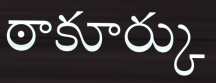
ఠాకూర్కు